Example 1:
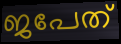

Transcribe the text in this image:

ജപേത്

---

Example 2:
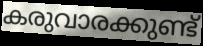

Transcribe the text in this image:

കരുവാരക്കുണ്ട്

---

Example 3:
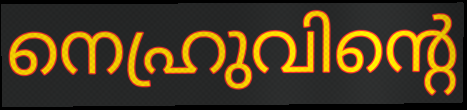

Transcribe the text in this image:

നെഹ്രുവിന്റെ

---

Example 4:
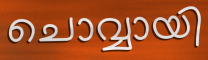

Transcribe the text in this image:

ചൊവ്വായി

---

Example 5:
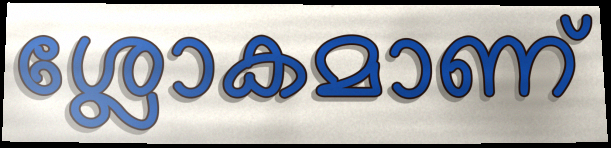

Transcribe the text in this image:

ശ്ലോകമാണ്